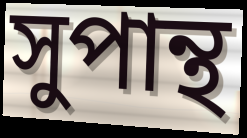
সুপান্থ